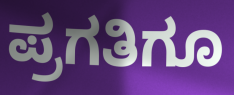
ಪ್ರಗತಿಗೂ